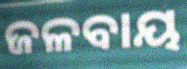
ଜଳବାୟ